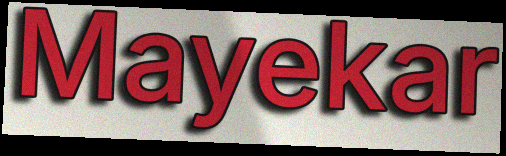
Mayekar